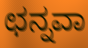
ಛನ್ನವಾ